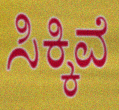
ಸಿಕ್ಕಿವೆ